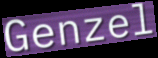
Genzel